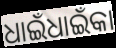
ଧାଇଁଧାଇଁକା